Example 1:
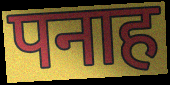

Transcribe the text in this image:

पनाह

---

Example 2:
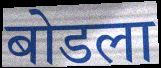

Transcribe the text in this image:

बोडला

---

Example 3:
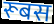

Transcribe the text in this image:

रूबस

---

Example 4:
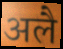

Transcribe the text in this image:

अलै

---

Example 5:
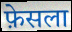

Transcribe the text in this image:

फ़ेसला